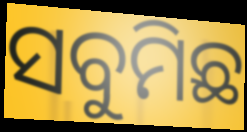
ସବୁମିଛ